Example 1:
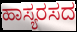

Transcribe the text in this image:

ಹಾಸ್ಯರಸದ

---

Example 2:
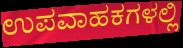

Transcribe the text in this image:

ಉಪವಾಹಕಗಳಲ್ಲಿ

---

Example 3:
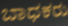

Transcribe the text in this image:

ಬಾಧಕರು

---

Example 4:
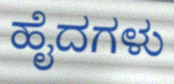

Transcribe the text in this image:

ಹೈದಗಳು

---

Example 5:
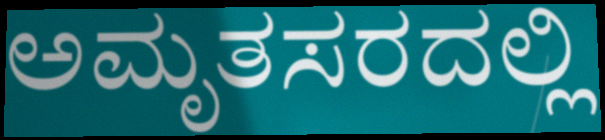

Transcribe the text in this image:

ಅಮೃತಸರದಲ್ಲಿ